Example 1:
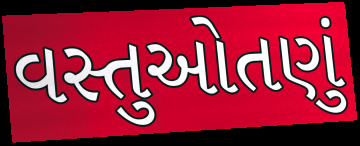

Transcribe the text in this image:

વસ્તુઓતણું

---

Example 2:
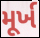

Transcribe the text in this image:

મૂર્ખ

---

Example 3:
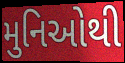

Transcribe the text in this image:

મુનિઓથી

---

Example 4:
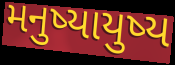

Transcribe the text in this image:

મનુષ્યાયુષ્ય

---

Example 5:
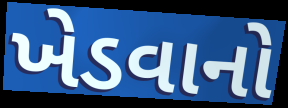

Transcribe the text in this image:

ખેડવાનો